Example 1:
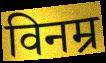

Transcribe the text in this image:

विनम्र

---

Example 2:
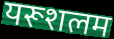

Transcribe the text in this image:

यरूशलम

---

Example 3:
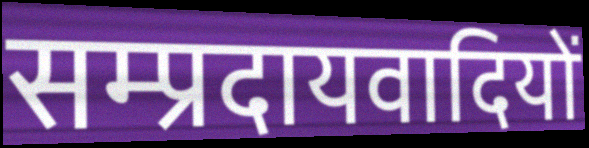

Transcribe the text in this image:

सम्प्रदायवादियों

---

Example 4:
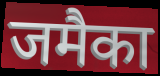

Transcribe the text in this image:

जमैका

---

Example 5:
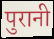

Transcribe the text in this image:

पुरानी